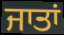
ਜਾਤਾਂ